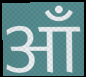
आँ